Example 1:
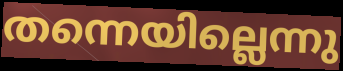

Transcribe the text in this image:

തന്നെയില്ലെന്നു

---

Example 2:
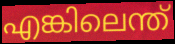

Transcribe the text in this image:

എങ്കിലെന്ത്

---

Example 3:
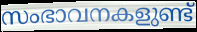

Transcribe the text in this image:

സംഭാവനകളുണ്ട്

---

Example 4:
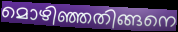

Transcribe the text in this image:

മൊഴിഞ്ഞതിങ്ങനെ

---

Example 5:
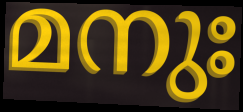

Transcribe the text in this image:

മനുഃ